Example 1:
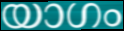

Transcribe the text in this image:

യാഗം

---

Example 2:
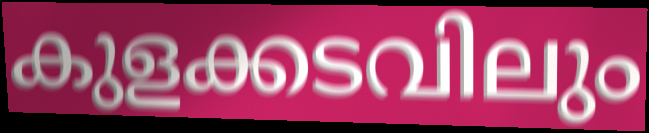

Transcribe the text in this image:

കുളക്കടവിലും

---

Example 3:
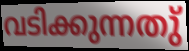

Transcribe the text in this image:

വടിക്കുന്നതു്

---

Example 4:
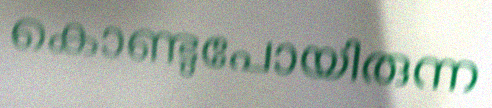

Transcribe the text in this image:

കൊണ്ടുപോയിരുന്ന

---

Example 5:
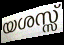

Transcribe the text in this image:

യശസ്സ്